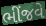
ભીંજવે